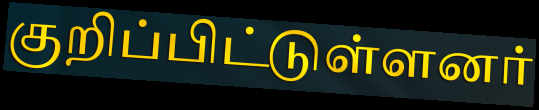
குறிப்பிட்டுள்ளனர்